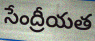
సేంద్రీయత